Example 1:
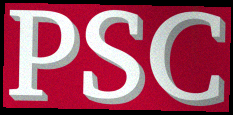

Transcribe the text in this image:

PSC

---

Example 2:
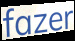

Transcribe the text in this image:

fazer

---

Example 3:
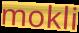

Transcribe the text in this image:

mokli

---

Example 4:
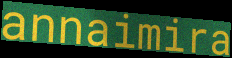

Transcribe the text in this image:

annaimira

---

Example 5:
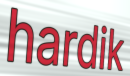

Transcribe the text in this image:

hardik